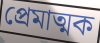
প্রেমাত্মক